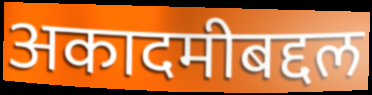
अकादमीबद्दल